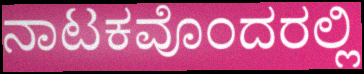
ನಾಟಕವೊಂದರಲ್ಲಿ